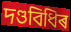
দণ্ডবিধিৰ